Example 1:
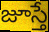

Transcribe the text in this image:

జూస్తే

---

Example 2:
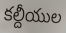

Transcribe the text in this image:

కల్దీయుల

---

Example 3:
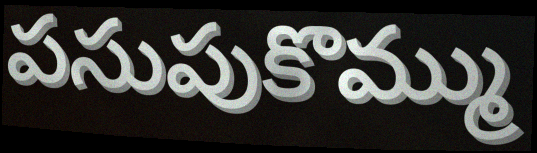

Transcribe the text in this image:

పసుపుకొమ్ము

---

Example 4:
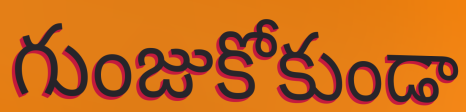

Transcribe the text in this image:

గుంజుకోకుండా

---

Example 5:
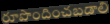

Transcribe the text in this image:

రూపొందించబడాలి